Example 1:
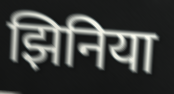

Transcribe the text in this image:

झिनिया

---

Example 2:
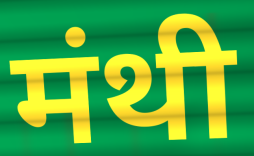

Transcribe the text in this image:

मंथी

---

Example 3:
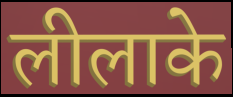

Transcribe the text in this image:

लीलाके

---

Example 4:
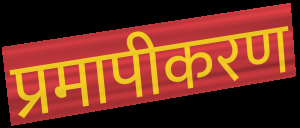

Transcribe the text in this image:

प्रमापीकरण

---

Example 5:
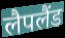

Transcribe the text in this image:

लैपलैंड